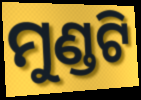
ମୁଣ୍ଡଟି